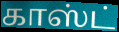
காஸ்ட்